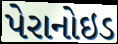
પેરાનોઇડ